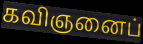
கவிஞனைப்